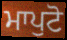
ਮਾਪੁਟੋ